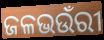
ଜଳଭଉଁରୀ